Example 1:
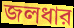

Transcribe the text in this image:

জলধার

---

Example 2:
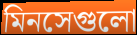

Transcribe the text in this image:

মিনসেগুলো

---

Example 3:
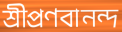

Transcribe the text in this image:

শ্রীপ্রণবানন্দ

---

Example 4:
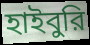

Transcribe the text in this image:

হাইবুরি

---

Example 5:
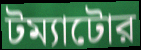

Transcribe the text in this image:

টম্যাটোর